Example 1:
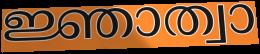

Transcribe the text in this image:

ജ്ഞാത്വാ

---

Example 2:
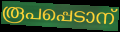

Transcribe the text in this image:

രൂപപ്പെടാന്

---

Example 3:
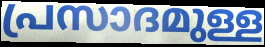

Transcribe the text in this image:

പ്രസാദമുള്ള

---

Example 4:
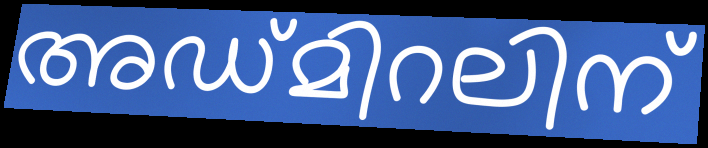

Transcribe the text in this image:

അഡ്മിറലിന്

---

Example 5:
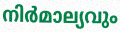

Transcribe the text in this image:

നിർമാല്യവും